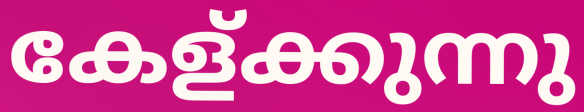
കേള്ക്കുന്നു